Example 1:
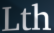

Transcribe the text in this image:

Lth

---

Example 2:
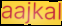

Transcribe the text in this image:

aajkal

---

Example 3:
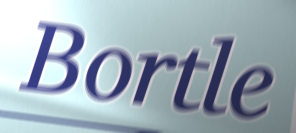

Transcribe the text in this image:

Bortle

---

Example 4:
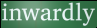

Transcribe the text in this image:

inwardly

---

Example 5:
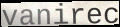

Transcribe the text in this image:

vanirec